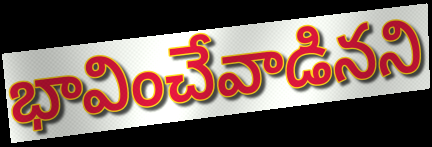
భావించేవాడినని